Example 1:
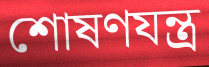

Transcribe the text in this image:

শোষণযন্ত্র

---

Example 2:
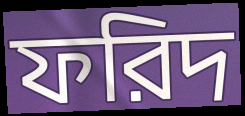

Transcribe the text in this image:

ফরিদ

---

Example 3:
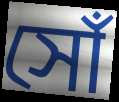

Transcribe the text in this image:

সোঁ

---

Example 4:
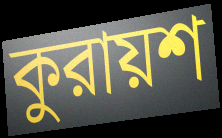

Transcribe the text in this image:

কুরায়শ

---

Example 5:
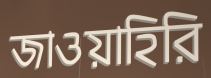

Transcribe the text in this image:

জাওয়াহিরি